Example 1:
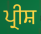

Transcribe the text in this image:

ਪ੍ਰੀਸ਼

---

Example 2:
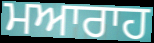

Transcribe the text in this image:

ਮਆਰਾਹ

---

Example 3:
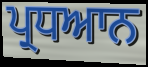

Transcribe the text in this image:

ਪ੍ਰਧਆਨ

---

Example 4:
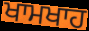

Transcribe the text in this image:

ਖਾਮਖਾਹ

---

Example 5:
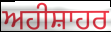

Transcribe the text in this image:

ਅਹੀਸ਼ਾਹਰ